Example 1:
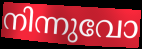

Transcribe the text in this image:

നിന്നുവോ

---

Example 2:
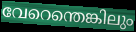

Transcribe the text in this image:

വേറെന്തെങ്കിലും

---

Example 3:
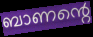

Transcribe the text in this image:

ബാണന്റെ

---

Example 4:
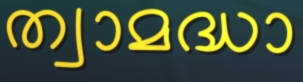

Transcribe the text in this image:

ത്വാമദ്ധാ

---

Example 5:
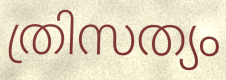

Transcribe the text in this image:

ത്രിസത്യം